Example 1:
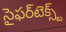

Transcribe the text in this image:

సైఫర్‌టెక్స్ట్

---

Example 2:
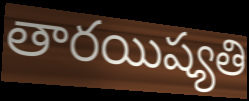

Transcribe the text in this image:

తారయిష్యతి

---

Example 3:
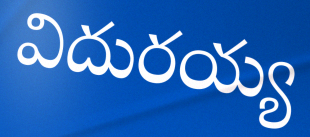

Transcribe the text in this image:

విదురయ్య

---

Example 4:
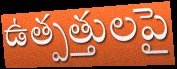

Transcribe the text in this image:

ఉత్పత్తులపై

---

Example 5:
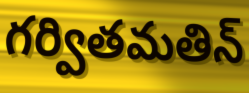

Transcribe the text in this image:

గర్వితమతిన్